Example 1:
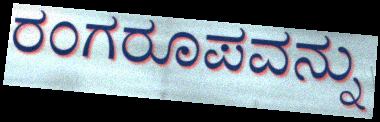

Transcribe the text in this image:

ರಂಗರೂಪವನ್ನು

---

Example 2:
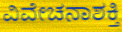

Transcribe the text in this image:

ವಿವೇಚನಾಶಕ್ತಿ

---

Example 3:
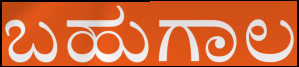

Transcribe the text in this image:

ಬಹುಗಾಲ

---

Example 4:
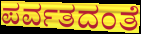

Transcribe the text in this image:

ಪರ್ವತದಂತೆ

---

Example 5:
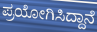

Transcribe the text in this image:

ಪ್ರಯೋಗಿಸಿದ್ದಾನೆ